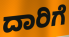
ದಾರಿಗೆ